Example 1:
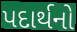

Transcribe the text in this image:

પદાર્થનો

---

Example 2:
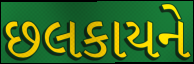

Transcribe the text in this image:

છલકાયને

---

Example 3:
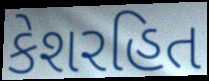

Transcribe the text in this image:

કેશરહિત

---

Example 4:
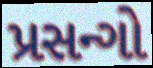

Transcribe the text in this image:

પ્રસન્ગો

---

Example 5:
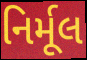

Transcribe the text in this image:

નિર્મૂલ